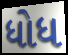
ધોધ